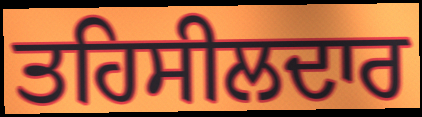
ਤਹਿਸੀਲਦਾਰ